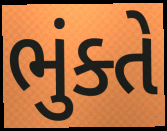
ભુંક્તે